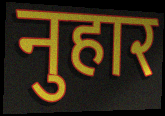
नुहार